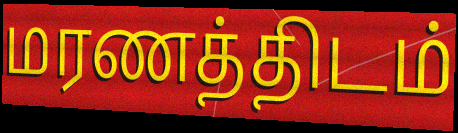
மரணத்திடம்